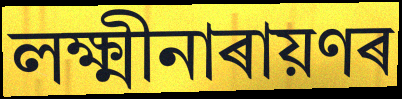
লক্ষ্মীনাৰায়ণৰ